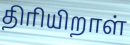
திரியிறாள்